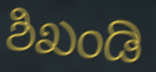
ಶಿಖಂಡಿ